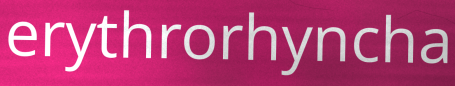
erythrorhyncha